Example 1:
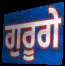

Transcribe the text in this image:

ਗੁਰੂਗੇ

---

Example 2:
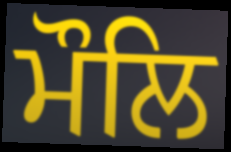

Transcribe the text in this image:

ਮੌਲਿ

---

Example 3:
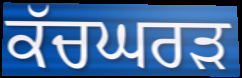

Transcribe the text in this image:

ਕੱਚਘਰੜ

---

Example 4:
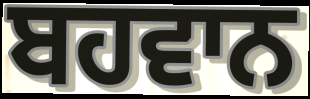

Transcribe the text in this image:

ਬਹਵਾਨ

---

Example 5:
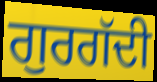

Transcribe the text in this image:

ਗੁਰਗੱਦੀ